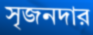
সৃজনদার